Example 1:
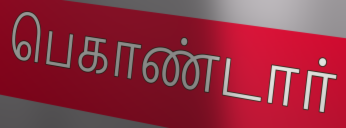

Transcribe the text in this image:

பெகாண்டார்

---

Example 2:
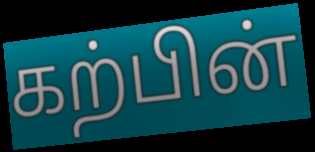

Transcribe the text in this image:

கற்பின்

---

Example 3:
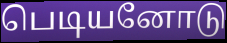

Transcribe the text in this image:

பெடியனோடு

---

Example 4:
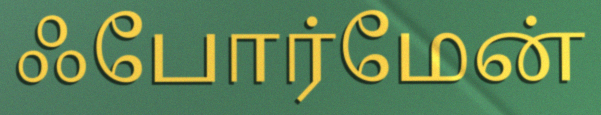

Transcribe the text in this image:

ஃபோர்மேன்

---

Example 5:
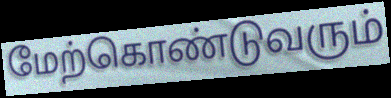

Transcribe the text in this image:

மேற்கொண்டுவரும்